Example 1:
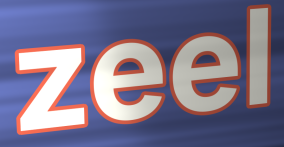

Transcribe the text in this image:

zeel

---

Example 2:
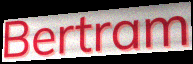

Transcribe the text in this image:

Bertram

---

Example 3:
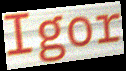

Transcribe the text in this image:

Igor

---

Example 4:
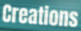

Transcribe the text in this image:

Creations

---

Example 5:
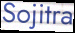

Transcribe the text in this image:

Sojitra